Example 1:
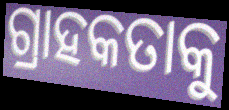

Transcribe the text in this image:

ଗ୍ରାହକତାକୁ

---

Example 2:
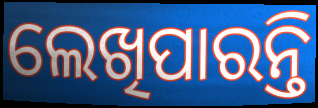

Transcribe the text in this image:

ଲେଖିପାରନ୍ତି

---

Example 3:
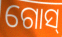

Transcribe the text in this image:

ଗୋସ୍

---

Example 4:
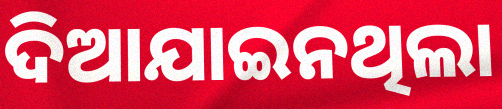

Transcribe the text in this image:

ଦିଆଯାଇନଥିଲା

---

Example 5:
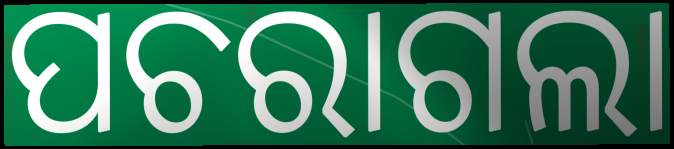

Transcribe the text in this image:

ପଚରାଗଲା